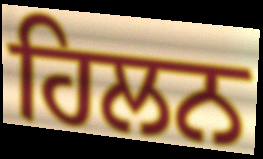
ਹਿਲਨ